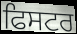
ਫਿਸਟਰ